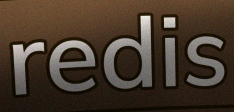
redis